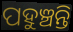
ପହୁଞ୍ଚନ୍ତି